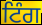
ਟਿੰਗ